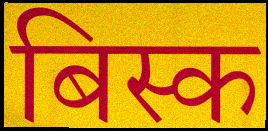
बिस्क